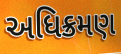
અધિક્રમણ